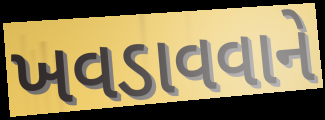
ખવડાવવાને